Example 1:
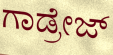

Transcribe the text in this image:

ಗಾಡ್ರೇಜ್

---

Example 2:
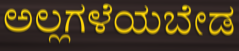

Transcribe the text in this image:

ಅಲ್ಲಗಳೆಯಬೇಡ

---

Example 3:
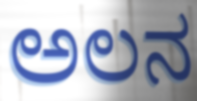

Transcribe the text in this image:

ಅಲನ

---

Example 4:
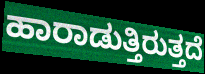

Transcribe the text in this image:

ಹಾರಾಡುತ್ತಿರುತ್ತದೆ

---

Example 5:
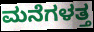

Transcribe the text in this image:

ಮನೆಗಳತ್ತ